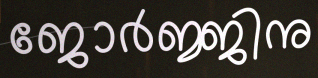
ജോർജ്ജിനു